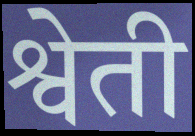
श्वेती